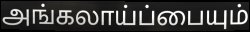
அங்கலாய்ப்பையும்